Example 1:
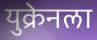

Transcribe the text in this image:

युक्रेनला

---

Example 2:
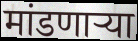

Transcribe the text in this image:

मांडणाऱ्या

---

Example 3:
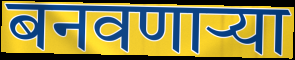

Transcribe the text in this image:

बनवणाऱ्या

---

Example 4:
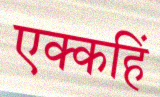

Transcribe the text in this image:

एक्कहिं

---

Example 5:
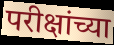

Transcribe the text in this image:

परीक्षांच्या